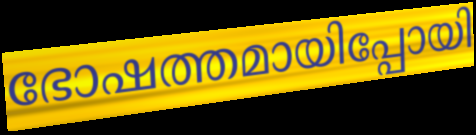
ഭോഷത്തമായിപ്പോയി